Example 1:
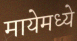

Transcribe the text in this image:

मायेमध्ये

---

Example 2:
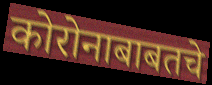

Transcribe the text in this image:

कोरोनाबाबतचे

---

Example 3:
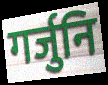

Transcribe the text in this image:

गर्जुनि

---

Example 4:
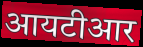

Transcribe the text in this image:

आयटीआर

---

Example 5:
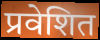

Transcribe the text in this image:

प्रवेशित